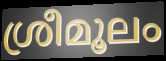
ശ്രീമൂലം